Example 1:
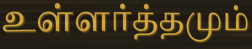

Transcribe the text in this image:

உள்ளர்த்தமும்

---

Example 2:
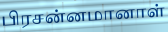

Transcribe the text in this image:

பிரசன்னமானாள்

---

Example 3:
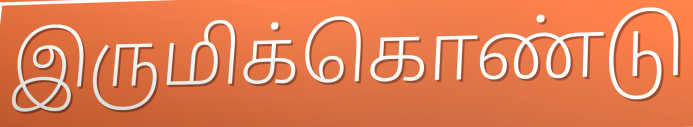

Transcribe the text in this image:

இருமிக்கொண்டு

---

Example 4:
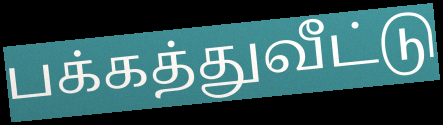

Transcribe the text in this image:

பக்கத்துவீட்டு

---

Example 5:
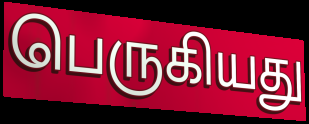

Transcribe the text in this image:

பெருகியது